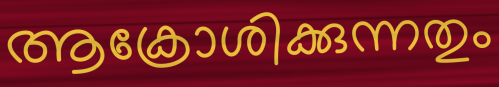
ആക്രോശിക്കുന്നതും